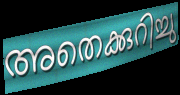
അതെക്കുറിച്ചു